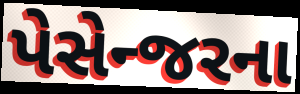
પેસેન્જરના